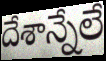
దేశాన్నేలే